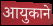
आयुकाने